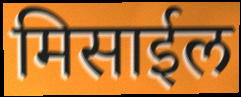
मिसाईल